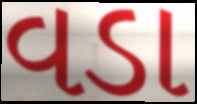
વડા